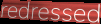
redressed